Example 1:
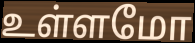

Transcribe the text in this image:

உள்ளமோ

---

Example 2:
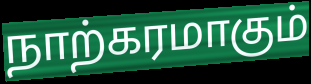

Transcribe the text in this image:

நாற்கரமாகும்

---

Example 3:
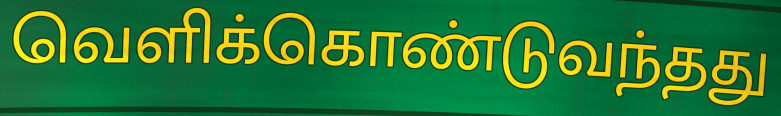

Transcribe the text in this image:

வெளிக்கொண்டுவந்தது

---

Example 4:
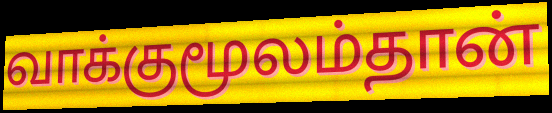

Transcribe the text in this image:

வாக்குமூலம்தான்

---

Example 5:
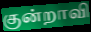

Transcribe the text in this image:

குன்றாவி